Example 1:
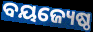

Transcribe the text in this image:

ବୟଜ୍ୟେଷ୍ଠ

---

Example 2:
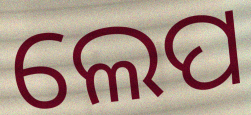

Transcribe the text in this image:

ଲେପ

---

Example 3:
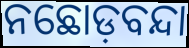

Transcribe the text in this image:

ନଛୋଡ଼ବନ୍ଦା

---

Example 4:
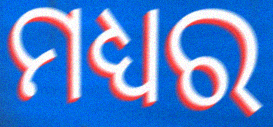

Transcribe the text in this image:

ମଧ୍ଯର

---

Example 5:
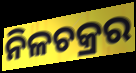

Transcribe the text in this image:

ନିଳଚକ୍ରର